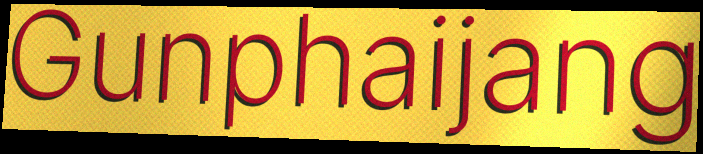
Gunphaijang